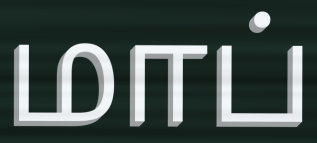
மாப்